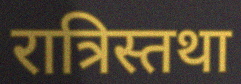
रात्रिस्तथा